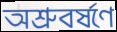
অশ্রুবর্ষণে